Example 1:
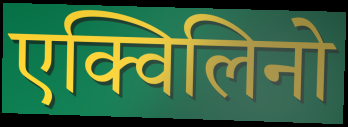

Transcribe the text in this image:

एक्विलिनो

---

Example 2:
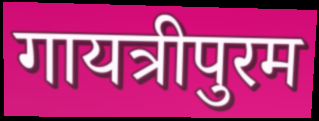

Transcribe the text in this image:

गायत्रीपुरम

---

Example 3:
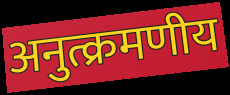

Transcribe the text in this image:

अनुत्क्रमणीय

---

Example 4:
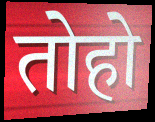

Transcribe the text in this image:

तोहो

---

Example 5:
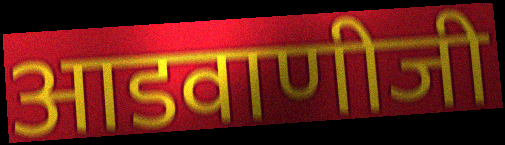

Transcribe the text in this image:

आडवाणीजी